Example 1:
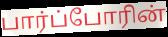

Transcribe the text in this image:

பார்ப்போரின்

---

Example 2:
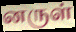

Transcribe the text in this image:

னருள்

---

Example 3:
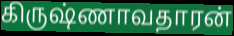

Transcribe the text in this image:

கிருஷ்ணாவதாரன்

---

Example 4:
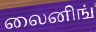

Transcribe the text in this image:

லைனிங்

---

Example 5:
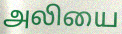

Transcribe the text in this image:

அலியை